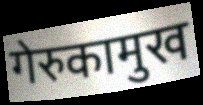
गेरुकामुख